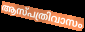
ആസ്പത്രിവാസം